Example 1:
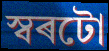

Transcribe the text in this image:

স্বৰটো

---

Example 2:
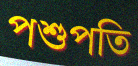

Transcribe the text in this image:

পশুপতি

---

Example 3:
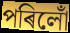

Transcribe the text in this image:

পৰিলোঁ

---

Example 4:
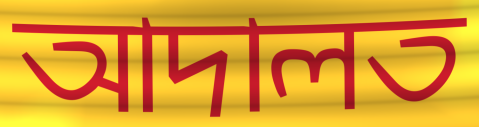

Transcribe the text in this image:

আদালত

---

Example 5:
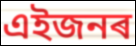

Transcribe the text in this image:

এইজনৰ